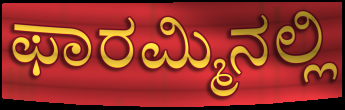
ಫಾರಮ್ಮಿನಲ್ಲಿ